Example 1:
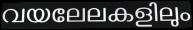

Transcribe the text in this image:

വയലേലകളിലും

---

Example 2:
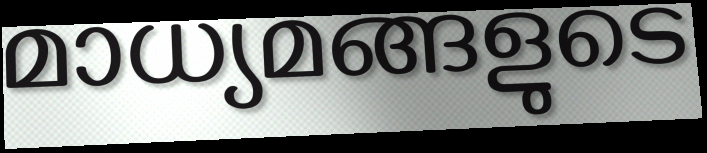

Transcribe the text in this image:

മാധ്യമങ്ങളുടെ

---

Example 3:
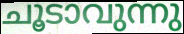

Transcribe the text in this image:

ചൂടാവുന്നു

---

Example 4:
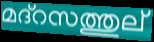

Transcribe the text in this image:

മദ്റസത്തുല്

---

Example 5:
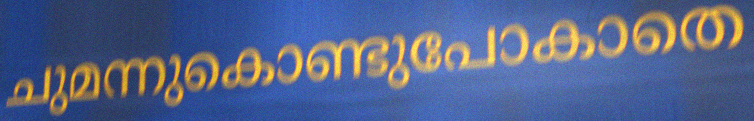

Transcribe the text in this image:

ചുമന്നുകൊണ്ടുപോകാതെ